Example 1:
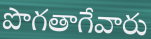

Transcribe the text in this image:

పొగతాగేవారు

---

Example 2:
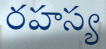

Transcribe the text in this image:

రహస్య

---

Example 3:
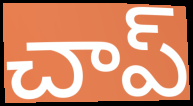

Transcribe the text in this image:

చాప్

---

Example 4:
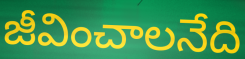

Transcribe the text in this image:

జీవించాలనేది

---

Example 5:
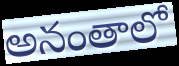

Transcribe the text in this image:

అనంతాలో